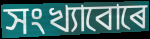
সংখ্যাবোৰে